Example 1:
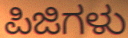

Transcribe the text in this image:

ಪಿಜಿಗಳು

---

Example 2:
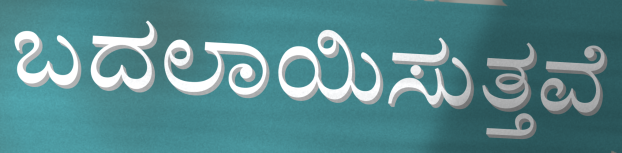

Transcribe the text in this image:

ಬದಲಾಯಿಸುತ್ತವೆ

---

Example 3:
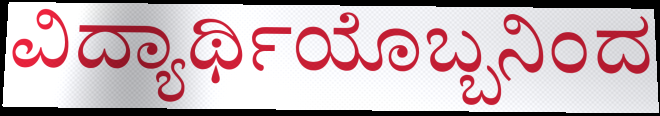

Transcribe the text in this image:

ವಿದ್ಯಾರ್ಥಿಯೊಬ್ಬನಿಂದ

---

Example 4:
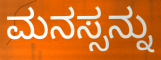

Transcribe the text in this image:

ಮನಸ್ಸನ್ನು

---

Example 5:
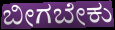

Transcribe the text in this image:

ಬೀಗಬೇಕು